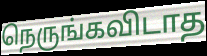
நெருங்கவிடாத